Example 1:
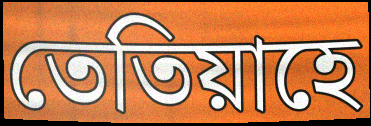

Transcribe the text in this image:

তেতিয়াহে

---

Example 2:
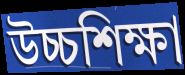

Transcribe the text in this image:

উচ্চশিক্ষা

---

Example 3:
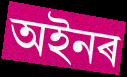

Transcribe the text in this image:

অইনৰ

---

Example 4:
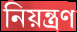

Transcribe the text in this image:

নিয়ন্ত্ৰণ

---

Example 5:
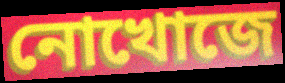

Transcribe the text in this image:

নোখোজে